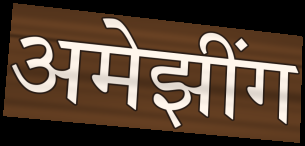
अमेझींग